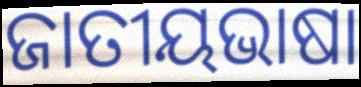
ଜାତୀୟଭାଷା